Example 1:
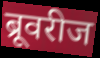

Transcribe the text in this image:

ब्रूवरीज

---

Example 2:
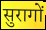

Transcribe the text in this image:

सुरागों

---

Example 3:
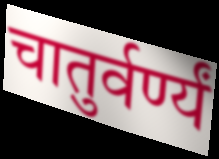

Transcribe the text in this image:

चातुर्वर्ण्यं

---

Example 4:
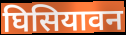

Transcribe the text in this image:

घिसियावन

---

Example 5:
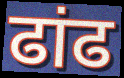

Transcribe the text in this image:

ढांढ